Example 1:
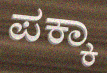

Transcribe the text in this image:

ಪಕ್ಕಾ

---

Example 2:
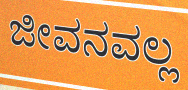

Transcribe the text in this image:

ಜೀವನವಲ್ಲ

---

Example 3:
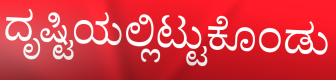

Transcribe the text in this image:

ದೃಷ್ಟಿಯಲ್ಲಿಟ್ಟುಕೊಂಡು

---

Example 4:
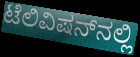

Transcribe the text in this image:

ಟೆಲಿವಿಷನ್‌ನಲ್ಲಿ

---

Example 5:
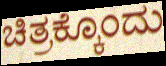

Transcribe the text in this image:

ಚಿತ್ರಕ್ಕೊಂದು